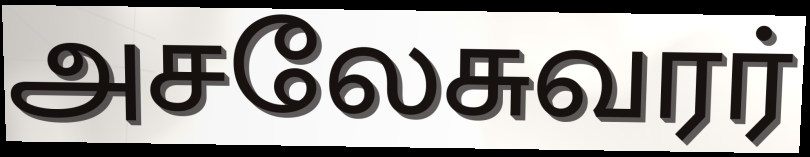
அசலேசுவரர்